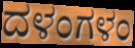
ದಳಂಗಳಂ